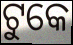
ଟୁକେ